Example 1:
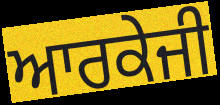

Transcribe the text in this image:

ਆਰਕੇਜੀ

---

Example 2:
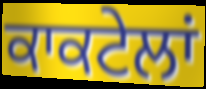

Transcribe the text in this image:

ਕਾਕਟੇਲਾਂ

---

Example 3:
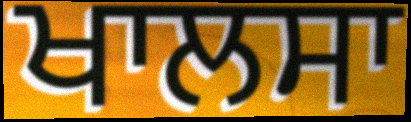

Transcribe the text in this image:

ਖਾਲਸਾ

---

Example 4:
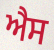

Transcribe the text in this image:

ਐਸ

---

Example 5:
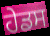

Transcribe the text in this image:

ਹੇਡਸ